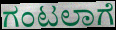
ಗಂಟಲಾಗೆ